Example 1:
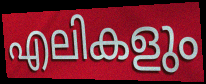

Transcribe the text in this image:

എലികളും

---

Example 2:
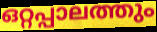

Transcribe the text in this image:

ഒറ്റപ്പാലത്തും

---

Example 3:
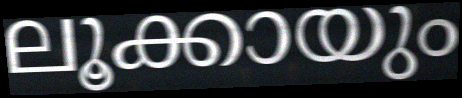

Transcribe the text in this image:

ലൂക്കായും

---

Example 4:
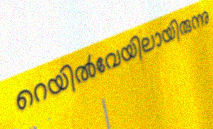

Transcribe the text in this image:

റെയിൽവേയിലായിരുന്നു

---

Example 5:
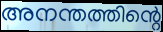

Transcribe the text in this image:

അനന്തത്തിന്റെ